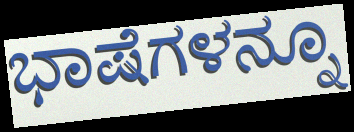
ಭಾಷೆಗಳನ್ನೂ